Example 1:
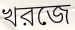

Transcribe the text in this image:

খরজে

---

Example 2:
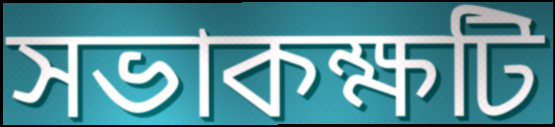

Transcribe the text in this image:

সভাকক্ষটি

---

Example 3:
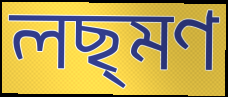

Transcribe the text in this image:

লছ্মণ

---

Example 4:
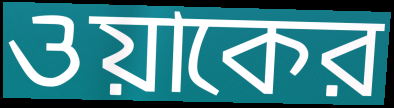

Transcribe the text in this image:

ওয়াকের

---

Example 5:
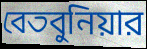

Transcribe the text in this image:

বেতবুনিয়ার